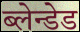
ब्लेन्डेड